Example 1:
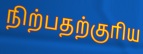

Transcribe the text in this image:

நிற்பதற்குரிய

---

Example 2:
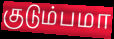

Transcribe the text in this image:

குடும்பமா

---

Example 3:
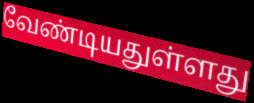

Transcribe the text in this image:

வேண்டியதுள்ளது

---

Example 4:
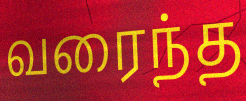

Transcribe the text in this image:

வரைந்த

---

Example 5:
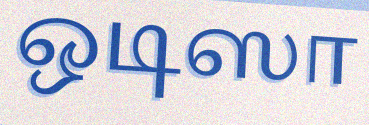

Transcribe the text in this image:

ஒடிஸா